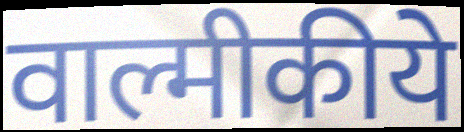
वाल्मीकीये